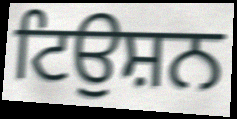
ਟਿਉਸ਼ਨ